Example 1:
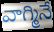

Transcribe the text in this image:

వాగ్మినే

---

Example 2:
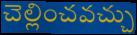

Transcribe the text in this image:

చెల్లించవచ్చు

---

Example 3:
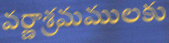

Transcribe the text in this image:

వర్ణాశ్రమములకు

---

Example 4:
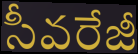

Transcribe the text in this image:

సీవరేజీ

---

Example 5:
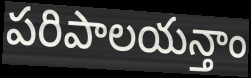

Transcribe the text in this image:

పరిపాలయన్తాం